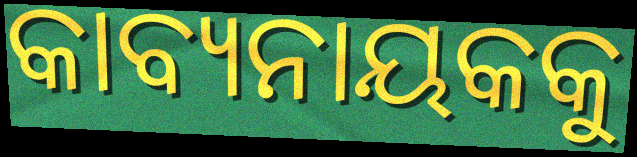
କାବ୍ୟନାୟକକୁ